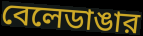
বেলেডাঙার